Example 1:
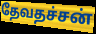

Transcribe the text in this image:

தேவதச்சன்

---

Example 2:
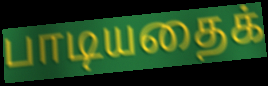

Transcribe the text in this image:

பாடியதைக்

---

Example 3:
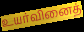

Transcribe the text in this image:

உயர்வினைத்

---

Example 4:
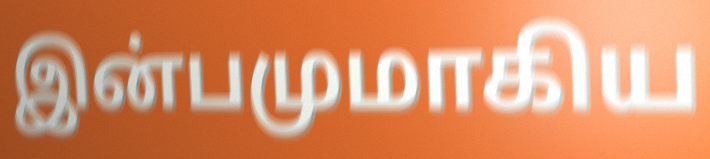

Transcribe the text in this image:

இன்பமுமாகிய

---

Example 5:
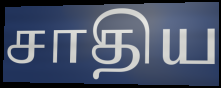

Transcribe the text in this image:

சாதிய